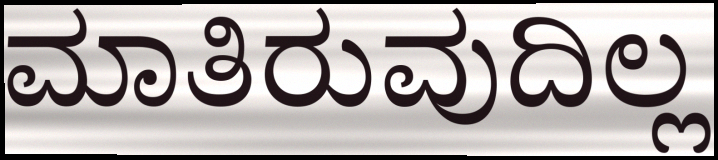
ಮಾತಿರುವುದಿಲ್ಲ